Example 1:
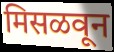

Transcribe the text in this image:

मिसळवून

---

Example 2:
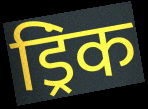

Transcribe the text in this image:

ड्रिंक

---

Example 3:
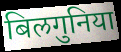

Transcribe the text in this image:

बिलगुनिया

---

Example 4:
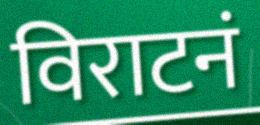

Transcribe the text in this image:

विराटनं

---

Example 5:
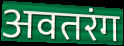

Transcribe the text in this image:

अवतरंग